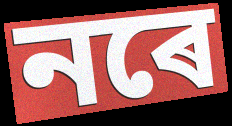
নৰে